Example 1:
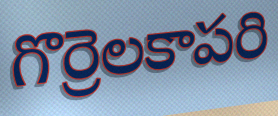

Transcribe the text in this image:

గొర్రెలకాపరి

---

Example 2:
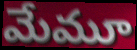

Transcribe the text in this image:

మేమూ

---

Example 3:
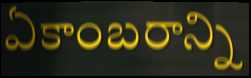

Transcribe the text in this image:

ఏకాంబరాన్ని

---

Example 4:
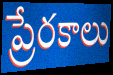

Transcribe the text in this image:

ప్రేరకాలు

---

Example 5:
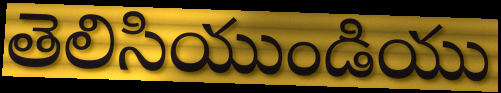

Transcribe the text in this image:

తెలిసియుండియు